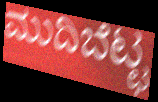
ಮುದಿಬೆಟ್ಟ